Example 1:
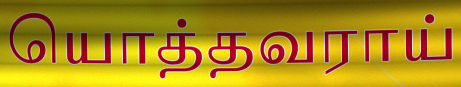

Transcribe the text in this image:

யொத்தவராய்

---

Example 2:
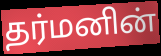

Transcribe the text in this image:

தர்மனின்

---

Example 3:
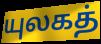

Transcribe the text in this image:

யுலகத்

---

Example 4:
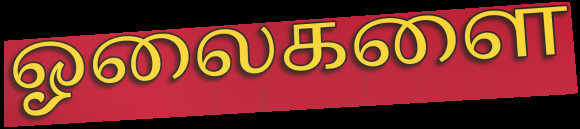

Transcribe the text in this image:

ஓலைகளை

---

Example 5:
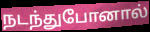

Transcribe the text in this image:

நடந்துபோனால்